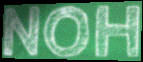
NOH